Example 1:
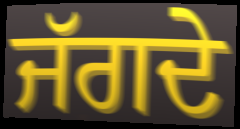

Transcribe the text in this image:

ਜੱਗਦੇ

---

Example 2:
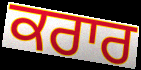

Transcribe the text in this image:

ਕਰਾਰ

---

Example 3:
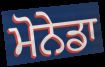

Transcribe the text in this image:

ਮੋਨੇਡਾ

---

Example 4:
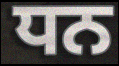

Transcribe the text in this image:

ਧਨ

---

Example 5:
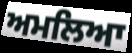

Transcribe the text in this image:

ਅਮਲਿਆ